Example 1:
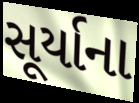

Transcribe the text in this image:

સૂર્યાના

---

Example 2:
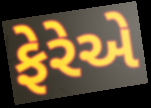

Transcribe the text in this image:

ફેરેએ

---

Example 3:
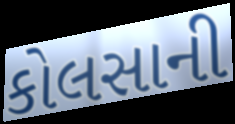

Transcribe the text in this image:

કોલસાની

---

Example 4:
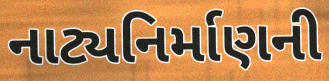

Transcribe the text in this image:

નાટ્યનિર્માણની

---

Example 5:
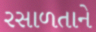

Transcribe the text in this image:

રસાળતાને